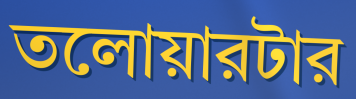
তলোয়ারটার